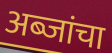
अब्जांचा